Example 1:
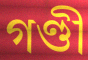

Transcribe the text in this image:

গণ্ডী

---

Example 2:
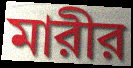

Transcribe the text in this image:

মারীর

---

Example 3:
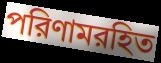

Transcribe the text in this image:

পরিণামরহিত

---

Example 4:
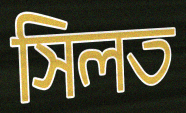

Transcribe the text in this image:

সিলত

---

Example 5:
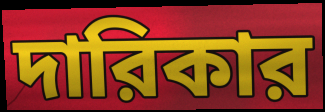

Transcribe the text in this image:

দারিকার